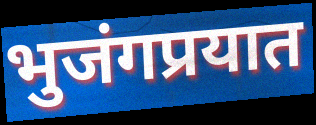
भुजंगप्रयात